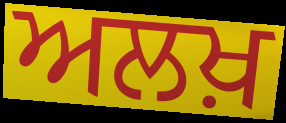
ਅਲਖ਼